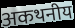
अकथनीय